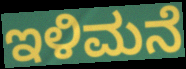
ಇಳಿಮನೆ